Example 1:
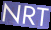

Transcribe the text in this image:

NRT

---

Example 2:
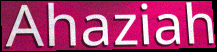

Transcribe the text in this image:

Ahaziah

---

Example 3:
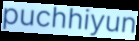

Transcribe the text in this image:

puchhiyun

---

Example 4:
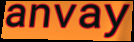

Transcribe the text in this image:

anvay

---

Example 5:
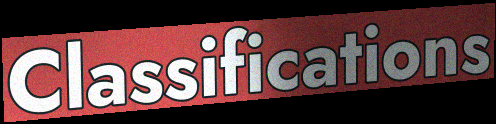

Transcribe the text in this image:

Classifications